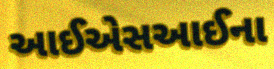
આઈએસઆઈના